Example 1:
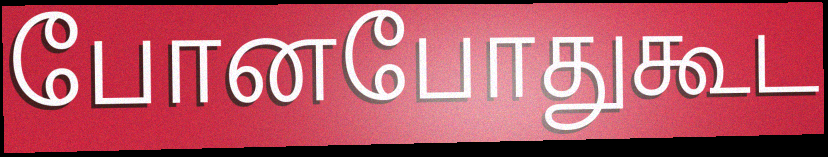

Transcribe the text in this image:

போனபோதுகூட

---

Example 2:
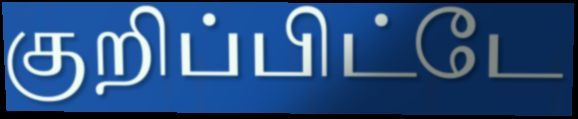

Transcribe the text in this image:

குறிப்பிட்டே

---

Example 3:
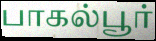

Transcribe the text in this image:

பாகல்பூர்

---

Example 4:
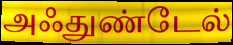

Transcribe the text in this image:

அஃதுண்டேல்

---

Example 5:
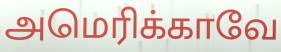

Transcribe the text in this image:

அமெரிக்காவே